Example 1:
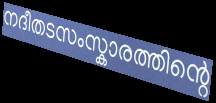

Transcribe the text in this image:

നദീതടസംസ്കാരത്തിന്റെ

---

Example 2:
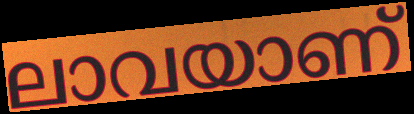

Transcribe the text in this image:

ലാവയാണ്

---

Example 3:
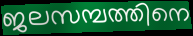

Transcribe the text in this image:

ജലസമ്പത്തിനെ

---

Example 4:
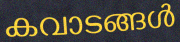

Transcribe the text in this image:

കവാടങ്ങൾ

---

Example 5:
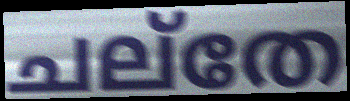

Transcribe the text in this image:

ചല്തേ